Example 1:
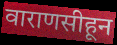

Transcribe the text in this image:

वाराणसीहून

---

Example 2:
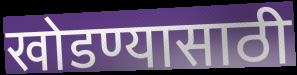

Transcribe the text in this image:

खोडण्यासाठी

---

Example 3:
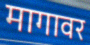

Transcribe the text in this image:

मागावर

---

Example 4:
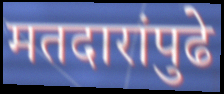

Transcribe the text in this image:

मतदारांपुढे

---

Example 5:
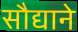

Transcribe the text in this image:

सौद्याने